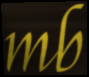
mb